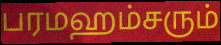
பரமஹம்சரும்